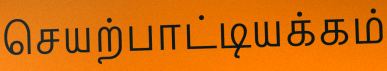
செயற்பாட்டியக்கம்